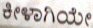
ಕೀಳಾಗಿಯೇ